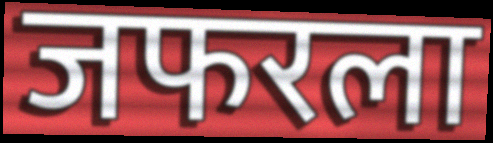
जफरला